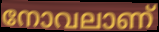
നോവലാണ്